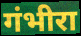
गंभीरा